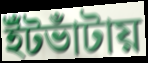
ইঁটভাঁটায়